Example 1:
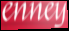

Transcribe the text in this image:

enney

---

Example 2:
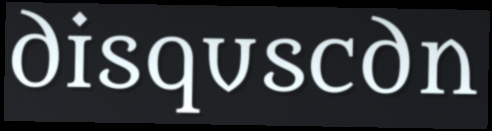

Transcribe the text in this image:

disquscdn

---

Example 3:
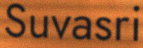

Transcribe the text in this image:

Suvasri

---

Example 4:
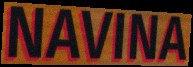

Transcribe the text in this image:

NAVINA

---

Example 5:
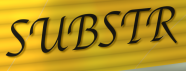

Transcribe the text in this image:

SUBSTR